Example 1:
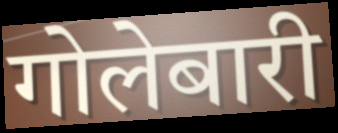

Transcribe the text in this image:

गोलेबारी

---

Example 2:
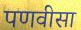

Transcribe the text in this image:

पणवीसा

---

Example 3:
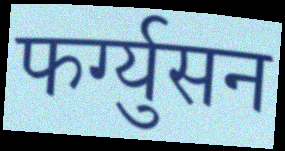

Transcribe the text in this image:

फर्ग्युसन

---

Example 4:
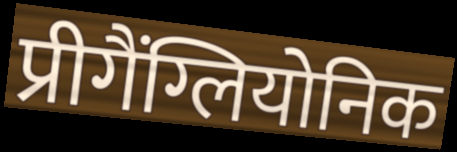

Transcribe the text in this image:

प्रीगैंग्लियोनिक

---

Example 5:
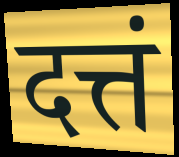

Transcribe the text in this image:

दत्तं